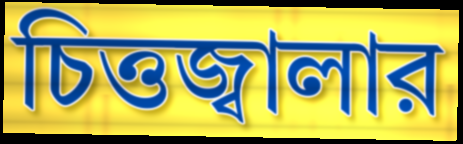
চিত্তজ্বালার